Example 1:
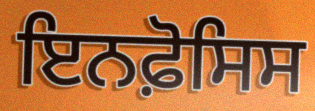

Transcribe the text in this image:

ਇਨਫ਼ੋਸਿਸ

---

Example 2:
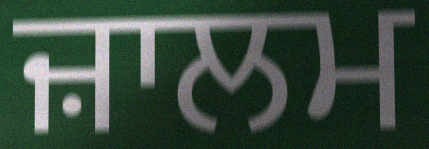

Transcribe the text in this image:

ਜ਼ਾਲਮ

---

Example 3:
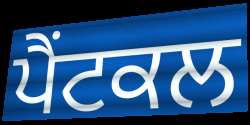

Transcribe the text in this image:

ਪੈਂਟਕਲ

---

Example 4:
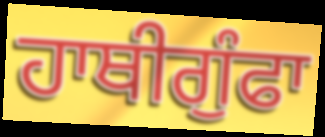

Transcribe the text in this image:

ਹਾਥੀਗੁੰਫਾ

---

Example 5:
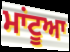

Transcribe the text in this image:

ਮਾਂਟੂਆ